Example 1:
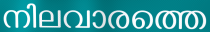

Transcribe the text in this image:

നിലവാരത്തെ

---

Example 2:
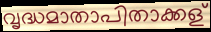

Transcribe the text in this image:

വൃദ്ധമാതാപിതാക്കള്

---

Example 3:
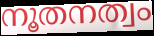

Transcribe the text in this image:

നൂതനത്വം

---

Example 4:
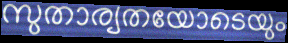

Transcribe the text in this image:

സുതാര്യതയോടെയും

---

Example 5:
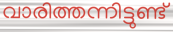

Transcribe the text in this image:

വാരിത്തന്നിട്ടുണ്ട്